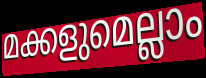
മക്കളുമെല്ലാം